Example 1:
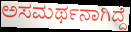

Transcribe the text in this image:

ಅಸಮರ್ಥನಾಗಿದ್ದೆ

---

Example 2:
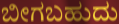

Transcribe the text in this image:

ಬೀಗಬಹುದು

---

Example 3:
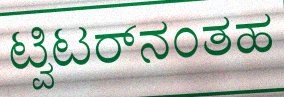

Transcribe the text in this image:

ಟ್ವಿಟರ್‌ನಂತಹ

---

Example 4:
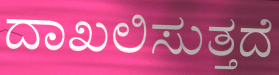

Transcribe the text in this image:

ದಾಖಲಿಸುತ್ತದೆ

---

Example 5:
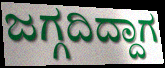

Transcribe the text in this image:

ಜಗ್ಗದಿದ್ದಾಗ